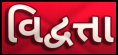
વિદ્વત્તા